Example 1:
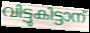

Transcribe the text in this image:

വിട്ടുകിട്ടാന്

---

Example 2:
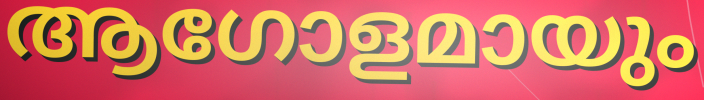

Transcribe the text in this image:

ആഗോളമായും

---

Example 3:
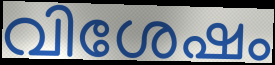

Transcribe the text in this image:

വിശേഷം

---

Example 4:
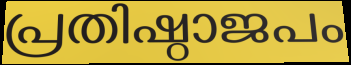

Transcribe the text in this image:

പ്രതിഷ്ഠാജപം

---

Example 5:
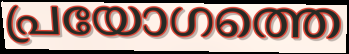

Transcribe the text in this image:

പ്രയോഗത്തെ